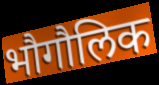
भौगौलिक